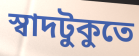
স্বাদটুকুতে